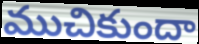
ముచికుందా